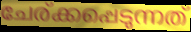
ചേര്ക്കപ്പെടുന്നത്